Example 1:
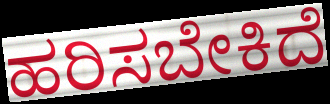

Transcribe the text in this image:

ಹರಿಸಬೇಕಿದೆ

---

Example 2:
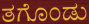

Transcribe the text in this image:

ತಗೊಂಡು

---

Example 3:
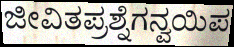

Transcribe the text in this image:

ಜೀವಿತಪ್ರಶ್ನೆಗನ್ವಯಿಪ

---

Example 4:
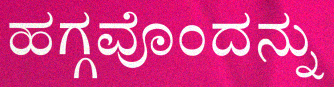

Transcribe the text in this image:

ಹಗ್ಗವೊಂದನ್ನು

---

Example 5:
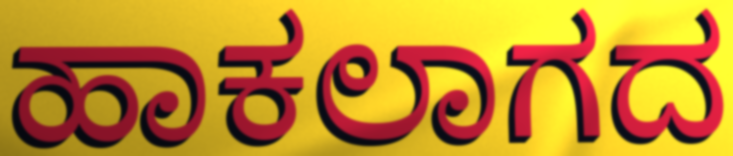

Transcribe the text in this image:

ಹಾಕಲಾಗದ